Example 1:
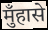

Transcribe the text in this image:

मुँहासे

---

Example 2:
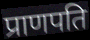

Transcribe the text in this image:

प्राणपति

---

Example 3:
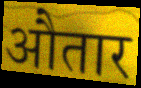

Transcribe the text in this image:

औतार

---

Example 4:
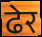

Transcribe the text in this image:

ढेर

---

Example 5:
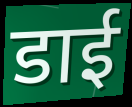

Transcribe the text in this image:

डाई